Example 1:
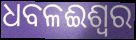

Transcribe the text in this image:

ଧବଳଈଶ୍ବର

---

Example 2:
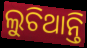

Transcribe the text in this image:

ଲୁଚିଥାନ୍ତି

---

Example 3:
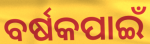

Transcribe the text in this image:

ବର୍ଷକପାଇଁ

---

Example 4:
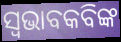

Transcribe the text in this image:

ସ୍ଵଭାବକବିଙ୍କ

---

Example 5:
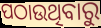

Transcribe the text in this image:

ପଠାଉଥିବାରୁ